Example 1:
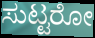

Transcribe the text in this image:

ಸುಟ್ಟರೋ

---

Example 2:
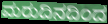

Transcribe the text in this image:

ಮರುದಿನದಿಂದ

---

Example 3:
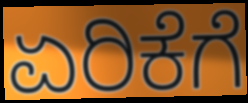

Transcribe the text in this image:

ಏರಿಕೆಗೆ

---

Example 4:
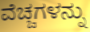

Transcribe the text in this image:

ವೆಚ್ಚಗಳನ್ನು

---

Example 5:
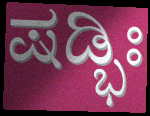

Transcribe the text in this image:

ಷಡ್ಭಿಃ